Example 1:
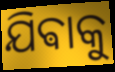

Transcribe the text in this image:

ଯିଵାକୁ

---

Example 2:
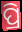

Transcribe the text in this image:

ପ୍ରି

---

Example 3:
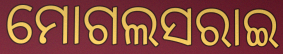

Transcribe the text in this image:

ମୋଗଲସରାଇ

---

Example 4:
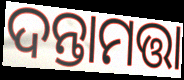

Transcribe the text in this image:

ଦନ୍ତାମତ୍ତା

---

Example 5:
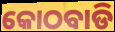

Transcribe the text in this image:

କୋଠବାଡି